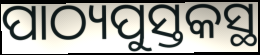
ପାଠ୍ୟପୁସ୍ତକସ୍ଥ